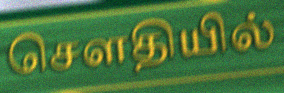
செளதியில்